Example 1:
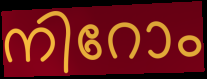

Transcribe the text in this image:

നിറോം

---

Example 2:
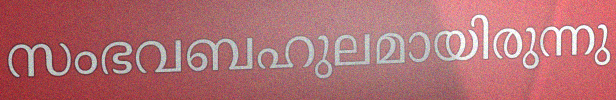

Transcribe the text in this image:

സംഭവബഹുലമായിരുന്നു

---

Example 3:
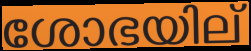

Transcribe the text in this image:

ശോഭയില്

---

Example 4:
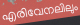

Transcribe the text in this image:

എരിവേനലിലും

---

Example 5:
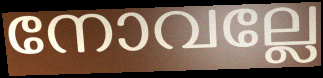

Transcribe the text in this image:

നോവല്ലേ